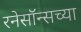
रनेसॉन्सच्या